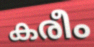
കരീം